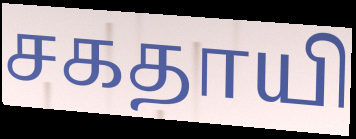
சகதாயி